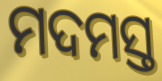
ମଦମସ୍ତ